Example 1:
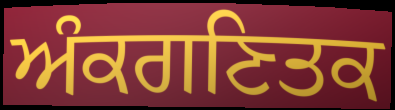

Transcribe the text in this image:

ਅੰਕਗਣਿਤਕ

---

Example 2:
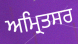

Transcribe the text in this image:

ਅਮ੍ਰਿਤਸਰ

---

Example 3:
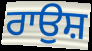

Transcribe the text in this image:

ਰਾਉਸ਼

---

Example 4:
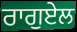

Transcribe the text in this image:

ਰਾਗੁਏਲ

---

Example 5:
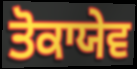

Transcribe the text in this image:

ਤੋਕਾਯੇਵ